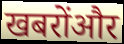
खबरोंऔर